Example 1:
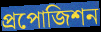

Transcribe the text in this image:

প্রপোজিশন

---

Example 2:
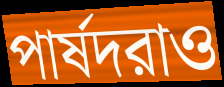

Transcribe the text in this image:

পার্ষদরাও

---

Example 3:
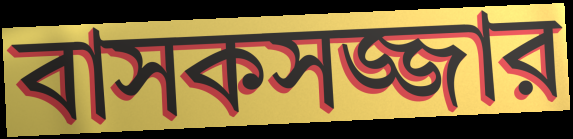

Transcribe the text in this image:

বাসকসজ্জার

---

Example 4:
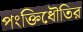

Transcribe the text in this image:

পংক্তিধৌতির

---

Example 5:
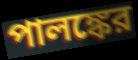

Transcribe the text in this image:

পালঙ্কের